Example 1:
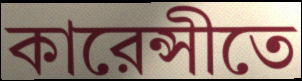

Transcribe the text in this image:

কারেন্সীতে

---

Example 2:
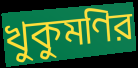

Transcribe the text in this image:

খুকুমণির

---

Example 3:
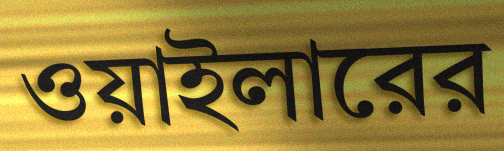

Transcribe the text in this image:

ওয়াইলারের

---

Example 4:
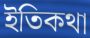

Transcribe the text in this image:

ইতিকথা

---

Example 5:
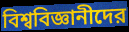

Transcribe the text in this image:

বিশ্ববিজ্ঞানীদের